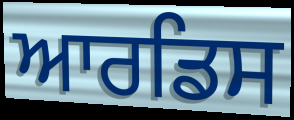
ਆਰਡਿਸ